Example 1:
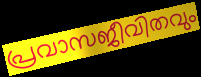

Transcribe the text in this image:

പ്രവാസജീവിതവും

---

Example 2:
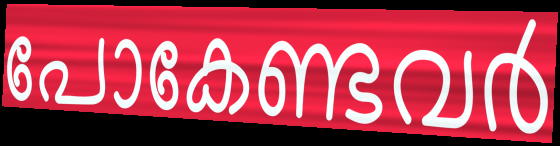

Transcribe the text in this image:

പോകേണ്ടവർ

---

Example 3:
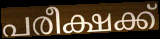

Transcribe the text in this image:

പരീക്ഷക്ക്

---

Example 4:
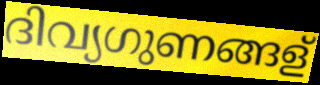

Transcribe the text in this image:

ദിവ്യഗുണങ്ങള്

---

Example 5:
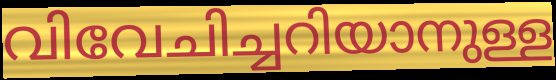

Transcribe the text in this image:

വിവേചിച്ചറിയാനുള്ള